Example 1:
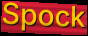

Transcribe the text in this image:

Spock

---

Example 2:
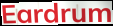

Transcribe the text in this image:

Eardrum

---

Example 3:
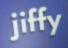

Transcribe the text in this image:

jiffy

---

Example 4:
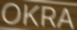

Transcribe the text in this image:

OKRA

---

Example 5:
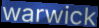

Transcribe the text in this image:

warwick